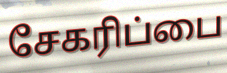
சேகரிப்பை